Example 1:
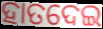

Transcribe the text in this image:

ହାତଦେଇ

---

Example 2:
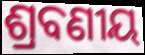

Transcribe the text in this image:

ଶ୍ରବଣୀୟ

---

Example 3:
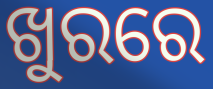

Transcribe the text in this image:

ଖୁରରେ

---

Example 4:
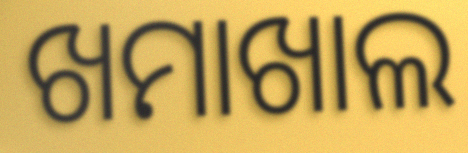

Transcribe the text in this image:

ଖମାଖାଲ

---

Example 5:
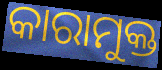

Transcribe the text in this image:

କାରାମୁକ୍ତ